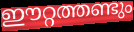
ഈറ്റത്തണ്ടും